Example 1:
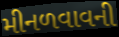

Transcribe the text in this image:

મીનળવાવની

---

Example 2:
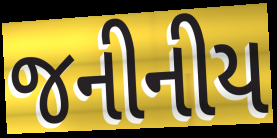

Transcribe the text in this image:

જનીનીય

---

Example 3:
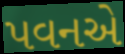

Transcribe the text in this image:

પવનએ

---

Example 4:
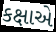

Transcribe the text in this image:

કક્ષાએ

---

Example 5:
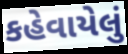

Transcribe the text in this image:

કહેવાયેલું